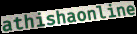
athishaonline